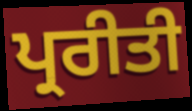
ਪ੍ਰਰੀਤੀ